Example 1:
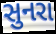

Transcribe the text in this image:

સુનરા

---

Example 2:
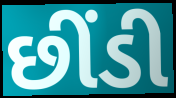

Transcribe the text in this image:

છીંડી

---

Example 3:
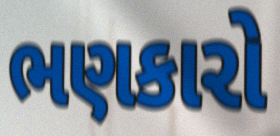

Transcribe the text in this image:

ભણકારો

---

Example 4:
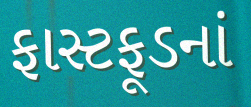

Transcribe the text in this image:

ફાસ્ટફૂડનાં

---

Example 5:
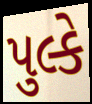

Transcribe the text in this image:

પુલ્કે